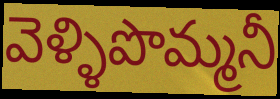
వెళ్ళిపొమ్మనీ